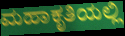
ಮಹಾಕೃತಿಯಲ್ಲಿ